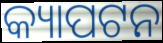
କ୍ୟାପଟନ